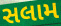
સલામ